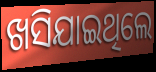
ଖସିଯାଇଥିଲେ